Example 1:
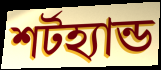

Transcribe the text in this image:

শর্টহ্যান্ড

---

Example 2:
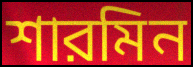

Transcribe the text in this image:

শারমিন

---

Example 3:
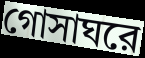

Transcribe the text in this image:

গোসাঘরে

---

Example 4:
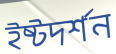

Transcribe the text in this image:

ইষ্টদর্শন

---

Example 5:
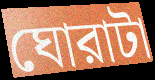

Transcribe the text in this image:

ঘোরাটা